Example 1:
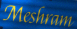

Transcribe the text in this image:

Meshram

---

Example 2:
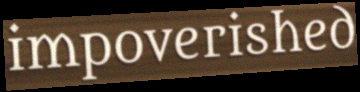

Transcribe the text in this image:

impoverished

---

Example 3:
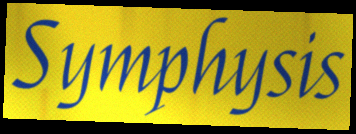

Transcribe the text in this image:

Symphysis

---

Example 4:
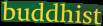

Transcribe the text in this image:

buddhist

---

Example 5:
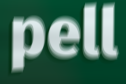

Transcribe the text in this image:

pell